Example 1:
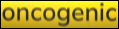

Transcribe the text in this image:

oncogenic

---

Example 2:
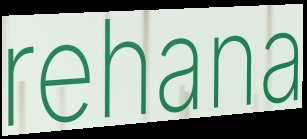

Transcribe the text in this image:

rehana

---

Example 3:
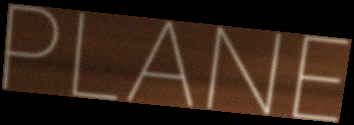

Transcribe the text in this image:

PLANE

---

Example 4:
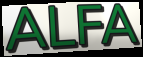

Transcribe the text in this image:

ALFA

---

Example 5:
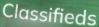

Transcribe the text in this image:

Classifieds